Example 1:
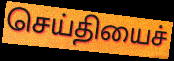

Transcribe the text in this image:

செய்தியைச்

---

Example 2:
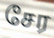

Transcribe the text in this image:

சேர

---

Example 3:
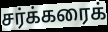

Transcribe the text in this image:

சர்க்கரைக்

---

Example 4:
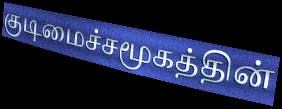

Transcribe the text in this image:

குடிமைச்சமூகத்தின்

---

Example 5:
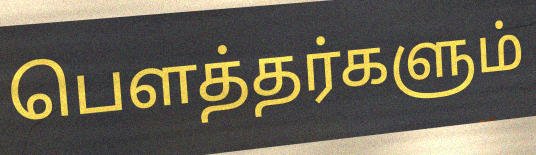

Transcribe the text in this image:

பௌத்தர்களும்